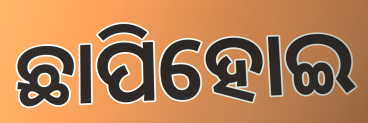
ଛାପିହୋଇ